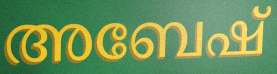
അബേഷ്